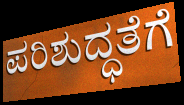
ಪರಿಶುದ್ಧತೆಗೆ